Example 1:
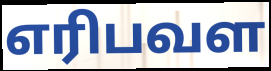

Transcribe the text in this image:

எரிபவள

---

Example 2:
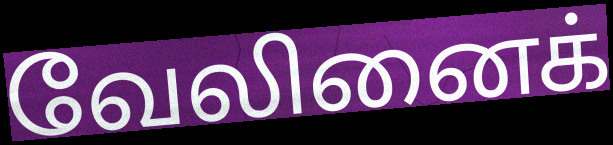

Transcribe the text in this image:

வேலினைக்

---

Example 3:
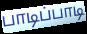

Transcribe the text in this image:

பாடிப்பாடி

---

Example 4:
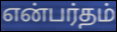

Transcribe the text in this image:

என்பர்தம்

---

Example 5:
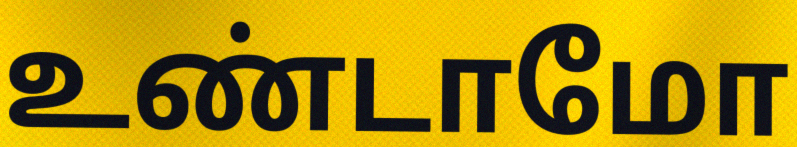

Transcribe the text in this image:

உண்டாமோ